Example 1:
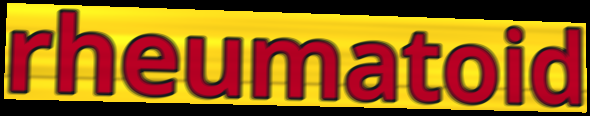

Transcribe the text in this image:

rheumatoid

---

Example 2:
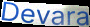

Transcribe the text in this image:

Devara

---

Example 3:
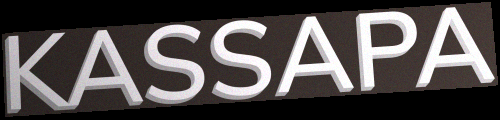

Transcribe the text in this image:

KASSAPA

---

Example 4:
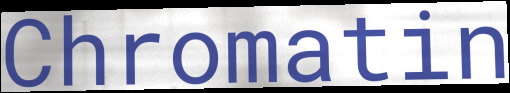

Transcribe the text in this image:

Chromatin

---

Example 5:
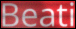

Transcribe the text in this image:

Beati